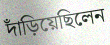
দাঁড়িয়েছিলেন